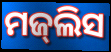
ମଜ୍‌ଲିସ